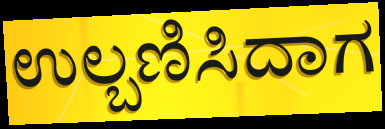
ಉಲ್ಬಣಿಸಿದಾಗ